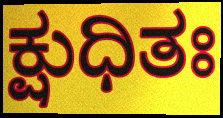
ಕ್ಷುಧಿತಃ